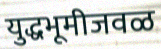
युद्धभूमीजवळ